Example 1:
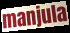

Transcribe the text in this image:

manjula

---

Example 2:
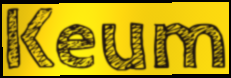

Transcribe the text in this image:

Keum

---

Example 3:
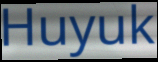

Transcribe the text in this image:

Huyuk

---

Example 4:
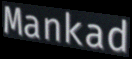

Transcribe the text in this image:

Mankad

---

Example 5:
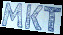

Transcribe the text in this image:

MKT